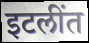
इटलींत